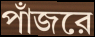
পাঁজরে